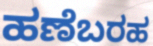
ಹಣೆಬರಹ